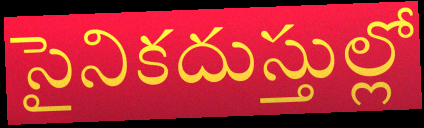
సైనికదుస్తుల్లో